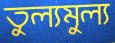
তুল্যমুল্য